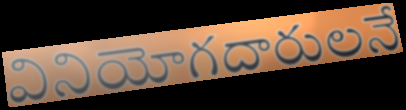
వినియోగదారులనే